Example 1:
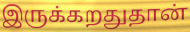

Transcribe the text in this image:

இருக்கறதுதான்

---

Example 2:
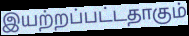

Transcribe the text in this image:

இயற்றப்பட்டதாகும்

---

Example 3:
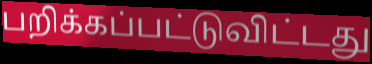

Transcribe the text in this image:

பறிக்கப்பட்டுவிட்டது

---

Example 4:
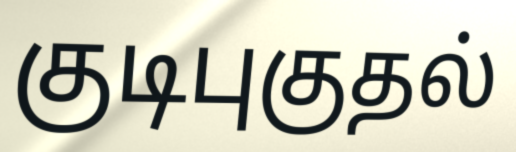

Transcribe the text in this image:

குடிபுகுதல்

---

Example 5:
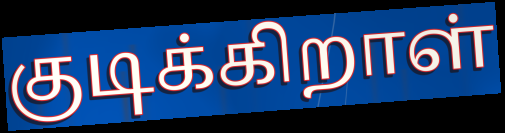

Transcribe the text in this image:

குடிக்கிறாள்